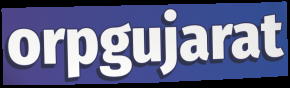
orpgujarat